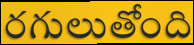
రగులుతోంది